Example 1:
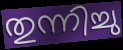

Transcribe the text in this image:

തുന്നിച്ചു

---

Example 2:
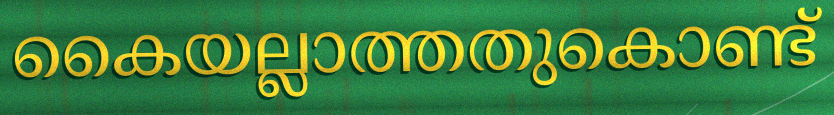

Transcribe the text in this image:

കൈയല്ലാത്തതുകൊണ്ട്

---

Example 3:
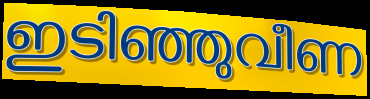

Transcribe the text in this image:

ഇടിഞ്ഞുവീണ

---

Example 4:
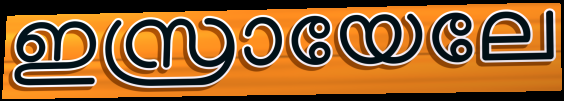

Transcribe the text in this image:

ഇസ്രായേലേ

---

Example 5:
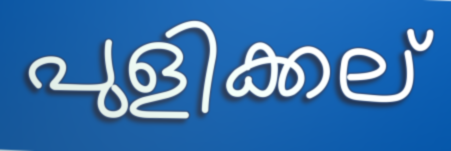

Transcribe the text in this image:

പുളിക്കല്